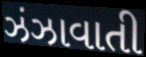
ઝંઝાવાતી